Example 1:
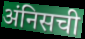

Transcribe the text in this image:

अंनिसची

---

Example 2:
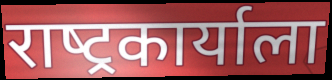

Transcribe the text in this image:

राष्ट्रकार्याला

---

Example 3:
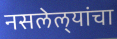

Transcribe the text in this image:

नसलेल्यांचा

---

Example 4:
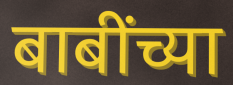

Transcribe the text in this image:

बाबींच्या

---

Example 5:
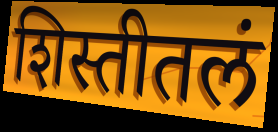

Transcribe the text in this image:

शिस्तीतलं